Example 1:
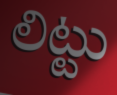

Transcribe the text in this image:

లిట్టు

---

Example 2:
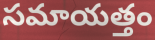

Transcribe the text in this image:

సమాయత్తం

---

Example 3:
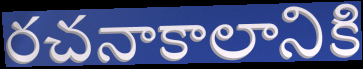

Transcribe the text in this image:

రచనాకాలానికి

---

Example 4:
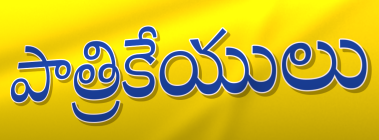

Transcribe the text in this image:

పాత్రికేయులు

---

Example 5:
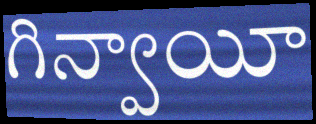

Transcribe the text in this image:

గిన్వాయీ